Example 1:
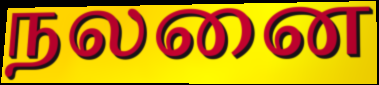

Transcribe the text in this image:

நலனை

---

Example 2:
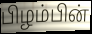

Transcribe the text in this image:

பிழம்பின்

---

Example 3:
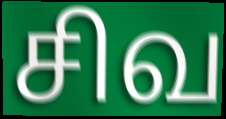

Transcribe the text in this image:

சிவ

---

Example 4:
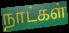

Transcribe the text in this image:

நாட்கள்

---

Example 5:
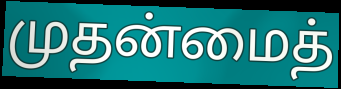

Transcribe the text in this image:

முதன்மைத்